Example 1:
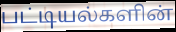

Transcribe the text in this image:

பட்டியல்களின்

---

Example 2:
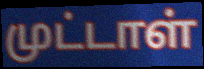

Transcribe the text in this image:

முட்டாள்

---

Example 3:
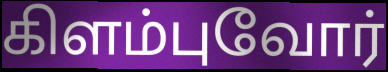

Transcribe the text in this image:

கிளம்புவோர்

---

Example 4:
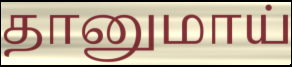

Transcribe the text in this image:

தானுமாய்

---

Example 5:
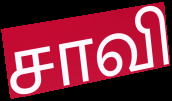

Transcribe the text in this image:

சாவி